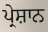
ਪ੍ਰੇਸ਼ਾਨ